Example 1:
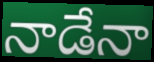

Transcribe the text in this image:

నాడేనా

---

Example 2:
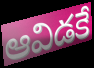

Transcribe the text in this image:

ఆవిడకే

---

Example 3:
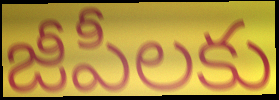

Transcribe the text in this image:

జీపీలకు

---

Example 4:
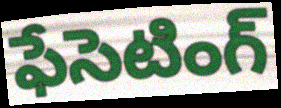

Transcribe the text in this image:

ఫేసెటింగ్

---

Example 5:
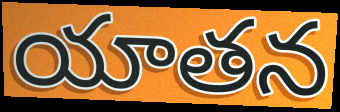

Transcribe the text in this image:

యాతన